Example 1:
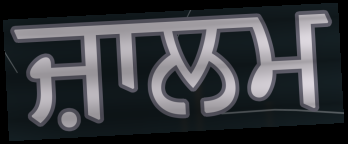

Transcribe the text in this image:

ਜ਼ਾਲਮ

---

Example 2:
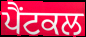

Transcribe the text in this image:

ਪੈਂਟਕਲ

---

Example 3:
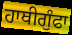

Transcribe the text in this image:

ਹਾਥੀਗੁੰਫਾ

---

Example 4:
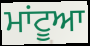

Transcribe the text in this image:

ਮਾਂਟੂਆ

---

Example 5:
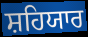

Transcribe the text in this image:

ਸ਼ਹਿਯਾਰ